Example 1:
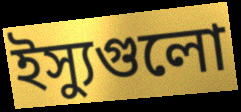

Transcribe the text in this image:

ইস্যুগুলো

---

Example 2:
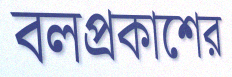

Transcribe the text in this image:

বলপ্রকাশের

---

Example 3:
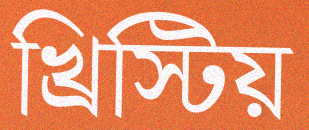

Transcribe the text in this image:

খ্রিস্টিয়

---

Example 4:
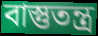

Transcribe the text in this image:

বাস্তুতন্ত্র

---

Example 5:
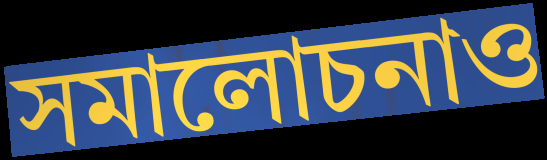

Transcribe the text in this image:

সমালোচনাও